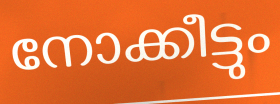
നോക്കീട്ടും